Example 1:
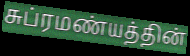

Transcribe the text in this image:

சுப்ரமண்யத்தின்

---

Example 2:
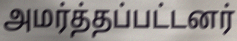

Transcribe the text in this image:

அமர்த்தப்பட்டனர்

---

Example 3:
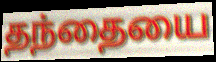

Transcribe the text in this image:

தந்தையை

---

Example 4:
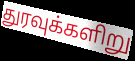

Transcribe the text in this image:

துரவுக்களிறு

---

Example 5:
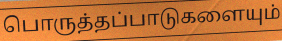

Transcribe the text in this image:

பொருத்தப்பாடுகளையும்